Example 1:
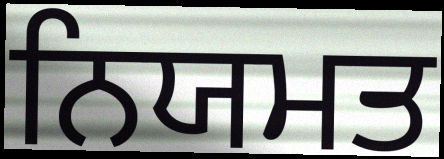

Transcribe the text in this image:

ਨਿਯਮਤ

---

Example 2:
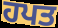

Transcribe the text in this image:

ਹਪਤ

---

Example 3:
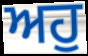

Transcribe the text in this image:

ਅਹੁ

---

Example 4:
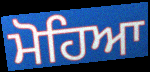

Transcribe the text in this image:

ਮੋਹਿਆ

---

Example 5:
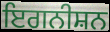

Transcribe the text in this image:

ਇਗਨੀਸ਼ਨ